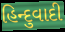
હિન્દુવાદી